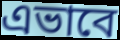
এভাবে